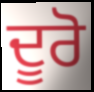
ਦੂਰੋ